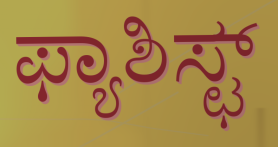
ಫ್ಯಾಶಿಸ್ಟ್